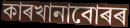
কাৰখানাবোৰৰ